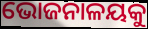
ଭୋଜନାଳୟକୁ